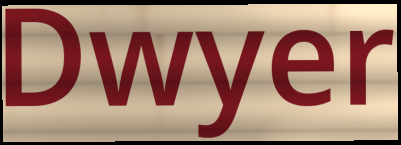
Dwyer